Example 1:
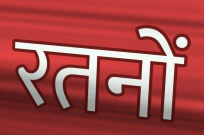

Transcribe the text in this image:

रतनों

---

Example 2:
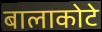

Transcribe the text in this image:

बालाकोटे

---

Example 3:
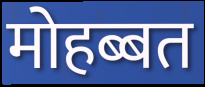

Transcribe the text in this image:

मोहब्‍बत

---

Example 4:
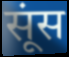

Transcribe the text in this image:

सूंस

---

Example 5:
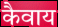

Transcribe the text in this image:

कैवाय